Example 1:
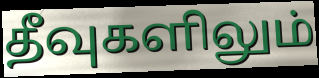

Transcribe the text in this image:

தீவுகளிலும்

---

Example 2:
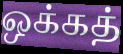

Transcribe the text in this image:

ஒக்கத்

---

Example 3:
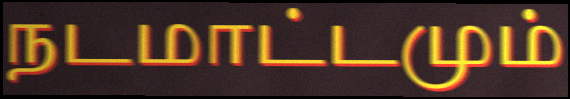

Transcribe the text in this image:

நடமாட்டமும்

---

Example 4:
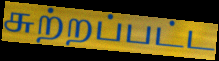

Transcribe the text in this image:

சுற்றப்பட்ட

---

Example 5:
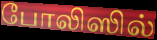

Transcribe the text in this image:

போலிஸில்